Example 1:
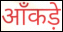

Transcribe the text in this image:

ऑंकड़े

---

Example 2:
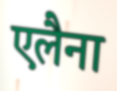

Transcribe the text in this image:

एलैना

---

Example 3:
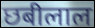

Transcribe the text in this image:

छबीलाल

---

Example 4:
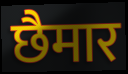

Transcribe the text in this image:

छैमार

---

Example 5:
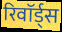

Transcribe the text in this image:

रिवॉर्ड्स